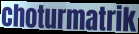
choturmatrik